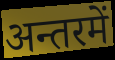
अन्तरमें